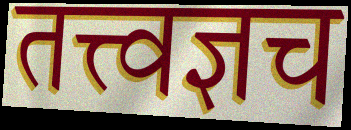
तत्त्वज्ञच